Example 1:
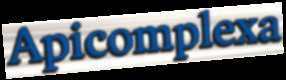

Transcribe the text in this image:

Apicomplexa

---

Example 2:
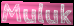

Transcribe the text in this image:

Muluk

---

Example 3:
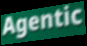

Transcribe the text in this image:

Agentic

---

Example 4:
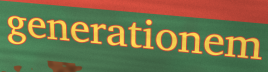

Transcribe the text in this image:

generationem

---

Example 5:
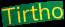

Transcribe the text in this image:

Tirtho